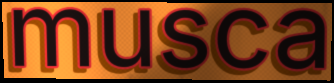
musca